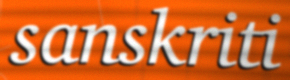
sanskriti